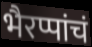
भैरप्पांचं